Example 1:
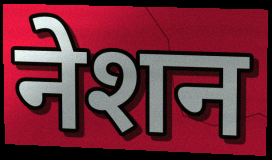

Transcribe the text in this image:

नेशन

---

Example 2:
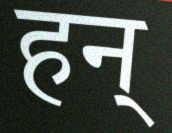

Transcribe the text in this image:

हन्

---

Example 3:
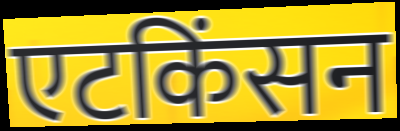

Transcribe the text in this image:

एटकिंसन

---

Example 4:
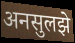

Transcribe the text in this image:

अनसुलझे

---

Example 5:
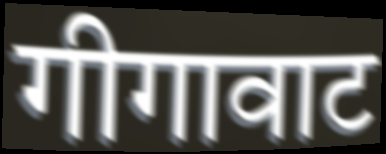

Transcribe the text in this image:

गीगावाट